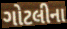
ગોટલીના